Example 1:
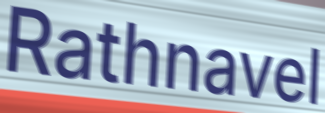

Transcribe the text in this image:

Rathnavel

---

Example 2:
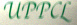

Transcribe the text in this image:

UPPCL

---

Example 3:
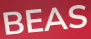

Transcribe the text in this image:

BEAS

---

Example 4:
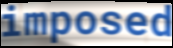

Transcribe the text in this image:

imposed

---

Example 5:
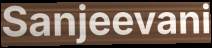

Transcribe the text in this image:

Sanjeevani